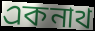
একনাথ